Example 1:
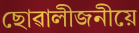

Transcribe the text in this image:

ছোৱালীজনীয়ে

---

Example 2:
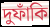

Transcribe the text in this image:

দুফাঁকি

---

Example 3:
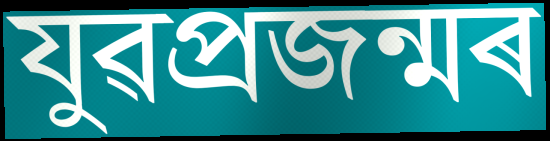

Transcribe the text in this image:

যুৱপ্ৰজন্মৰ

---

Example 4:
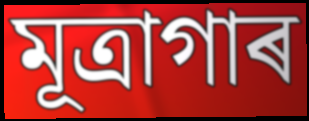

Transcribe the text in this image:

মূত্ৰাগাৰ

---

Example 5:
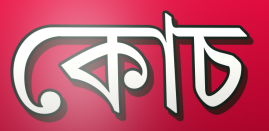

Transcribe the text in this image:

কোচ